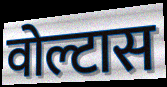
वोल्टास